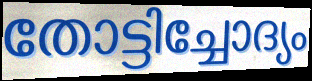
തോട്ടിച്ചോദ്യം